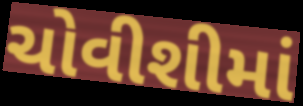
ચોવીશીમાં